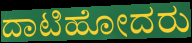
ದಾಟಿಹೋದರು